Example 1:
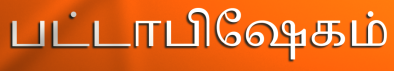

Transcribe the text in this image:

பட்டாபிஷேகம்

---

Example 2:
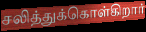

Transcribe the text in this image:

சலித்துக்கொள்கிறார்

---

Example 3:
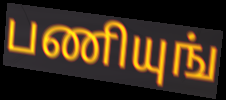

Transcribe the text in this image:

பணியுங்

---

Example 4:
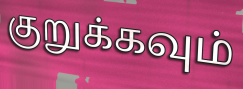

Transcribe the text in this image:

குறுக்கவும்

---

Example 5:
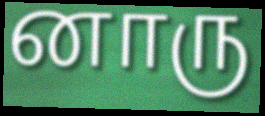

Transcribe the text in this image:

னாரு